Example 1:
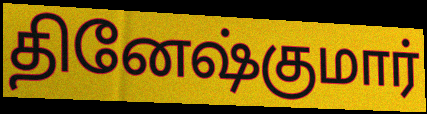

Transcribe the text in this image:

தினேஷ்குமார்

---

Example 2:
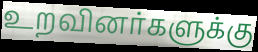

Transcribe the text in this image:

உறவினர்களுக்கு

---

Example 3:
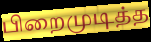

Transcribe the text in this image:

பிறைமுடித்த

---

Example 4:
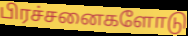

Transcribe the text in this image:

பிரச்சனைகளோடு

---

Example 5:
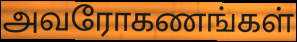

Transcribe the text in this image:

அவரோகணங்கள்